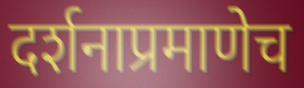
दर्शनाप्रमाणेच